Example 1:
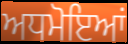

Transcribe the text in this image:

ਅਧਮੋਇਆਂ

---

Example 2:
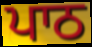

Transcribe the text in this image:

ਪਾਠ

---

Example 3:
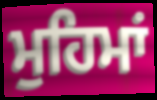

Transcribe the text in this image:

ਮੁਹਿਮਾਂ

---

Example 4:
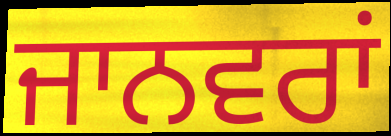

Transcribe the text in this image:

ਜਾਨਵਰਾਂ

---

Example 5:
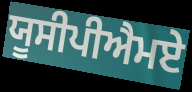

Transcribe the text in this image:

ਯੂਸੀਪੀਐਮਏ